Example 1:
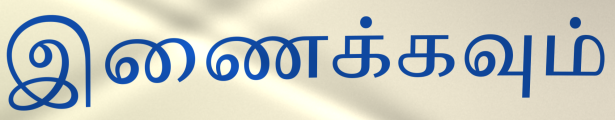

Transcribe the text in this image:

இணைக்கவும்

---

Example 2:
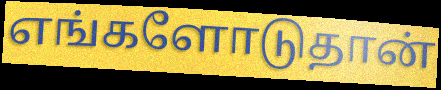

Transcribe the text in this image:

எங்களோடுதான்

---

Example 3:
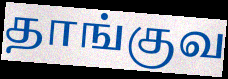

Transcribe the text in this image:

தாங்குவ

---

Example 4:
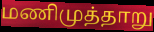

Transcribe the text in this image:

மணிமுத்தாறு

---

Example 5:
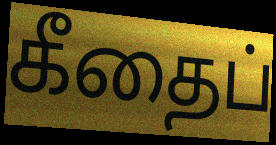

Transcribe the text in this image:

கீதைப்